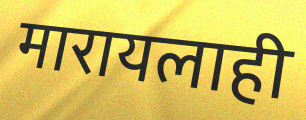
मारायलाही